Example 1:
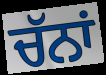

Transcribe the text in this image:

ਚੱਨਾਂ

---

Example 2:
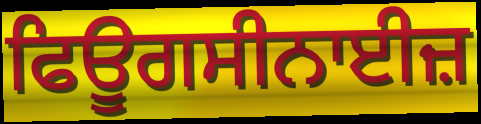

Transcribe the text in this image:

ਫਿਊਗਸੀਨਾਈਜ਼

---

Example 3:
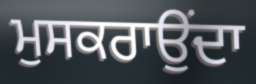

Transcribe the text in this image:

ਮੁਸਕਰਾਉਂਦਾ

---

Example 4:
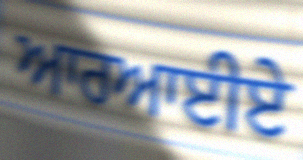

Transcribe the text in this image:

ਆਰਆਈਏ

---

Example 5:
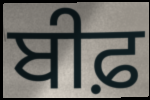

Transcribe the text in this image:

ਬੀਫ਼